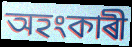
অহংকাৰী